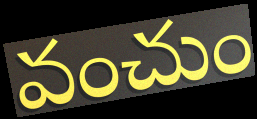
వంచుం